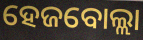
ହେଜବୋଲ୍ଲା